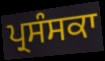
ਪ੍ਰਸੰਸਕਾ